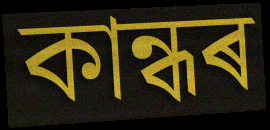
কান্ধৰ